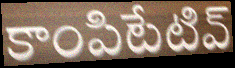
కాంపిటేటివ్